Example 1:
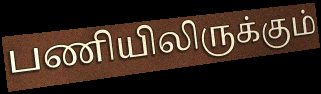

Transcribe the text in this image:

பணியிலிருக்கும்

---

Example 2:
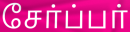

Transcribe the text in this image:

சேர்ப்பர்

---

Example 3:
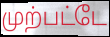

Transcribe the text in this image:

முற்பட்டே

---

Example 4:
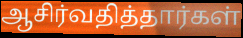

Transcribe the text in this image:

ஆசிர்வதித்தார்கள்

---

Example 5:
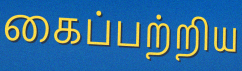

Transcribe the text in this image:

கைப்பற்றிய